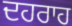
ਦਹਰਾਹ